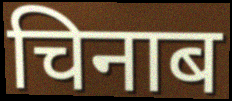
चिनाब